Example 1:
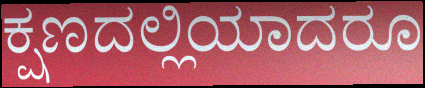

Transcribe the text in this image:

ಕ್ಷಣದಲ್ಲಿಯಾದರೂ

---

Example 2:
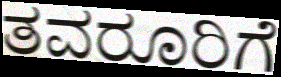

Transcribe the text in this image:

ತವರೂರಿಗೆ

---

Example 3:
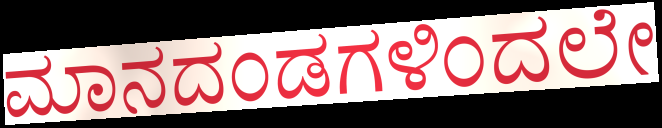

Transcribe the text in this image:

ಮಾನದಂಡಗಳಿಂದಲೇ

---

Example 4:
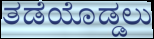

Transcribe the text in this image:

ತಡೆಯೊಡ್ಡಲು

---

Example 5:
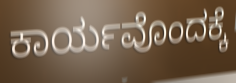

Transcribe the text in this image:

ಕಾರ್ಯವೊಂದಕ್ಕೆ